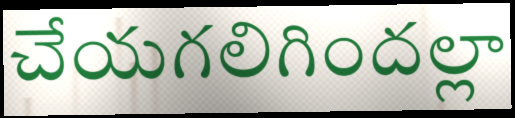
చేయగలిగిందల్లా